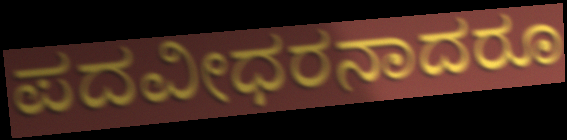
ಪದವೀಧರನಾದರೂ